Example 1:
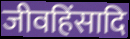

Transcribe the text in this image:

जीवहिंसादि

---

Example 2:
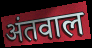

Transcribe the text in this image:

अंतवाल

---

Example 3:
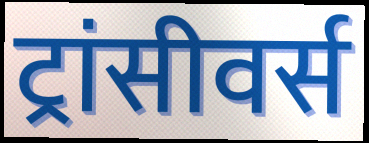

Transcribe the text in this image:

ट्रांसीवर्स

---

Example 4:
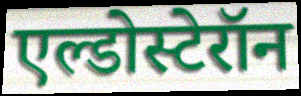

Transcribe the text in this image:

एल्डोस्टेरॉन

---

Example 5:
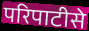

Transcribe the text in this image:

परिपाटीसे